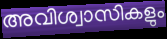
അവിശ്വാസികളും